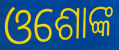
ଓଶୋଙ୍କ